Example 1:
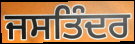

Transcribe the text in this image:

ਜਸਤਿੰਦਰ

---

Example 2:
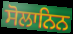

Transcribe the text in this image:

ਸੋਲਾਨਿਨ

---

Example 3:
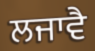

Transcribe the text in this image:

ਲਜਾਵੈ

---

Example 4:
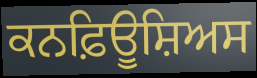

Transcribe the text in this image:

ਕਨਫ਼ਿਊਸ਼ਿਅਸ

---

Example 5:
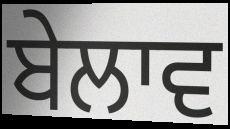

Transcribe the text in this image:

ਬੇਲਾਵ